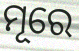
ମୂରେ